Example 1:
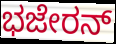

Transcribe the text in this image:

ಭಜೇರನ್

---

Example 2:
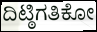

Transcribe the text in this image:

ದಿಟ್ಠಿಗತಿಕೋ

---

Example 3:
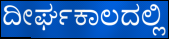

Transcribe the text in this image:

ದೀರ್ಘಕಾಲದಲ್ಲಿ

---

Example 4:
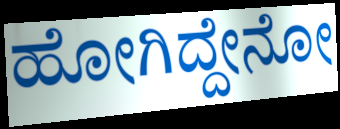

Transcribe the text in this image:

ಹೋಗಿದ್ದೇನೋ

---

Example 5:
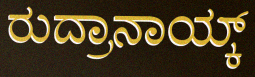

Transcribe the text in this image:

ರುದ್ರಾನಾಯ್ಕ್